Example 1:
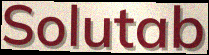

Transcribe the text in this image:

Solutab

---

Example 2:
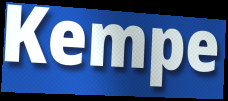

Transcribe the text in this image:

Kempe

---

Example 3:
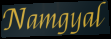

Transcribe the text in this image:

Namgyal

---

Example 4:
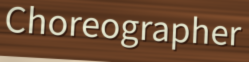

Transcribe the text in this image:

Choreographer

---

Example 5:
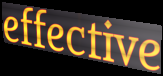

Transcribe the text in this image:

effective